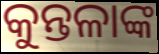
କୁନ୍ତଳାଙ୍କ